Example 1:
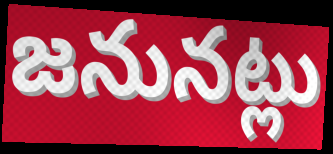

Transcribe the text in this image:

జనునట్లు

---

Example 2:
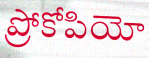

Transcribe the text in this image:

ప్రోకోపియో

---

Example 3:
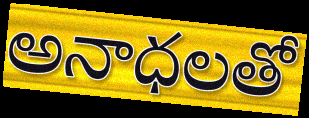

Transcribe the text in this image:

అనాధలతో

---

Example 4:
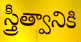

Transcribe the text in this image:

స్త్రీత్వానికి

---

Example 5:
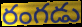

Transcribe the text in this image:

రంగడు